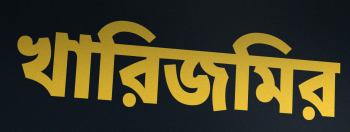
খারিজমির